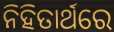
ନିହିତାର୍ଥରେ